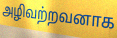
அழிவற்றவனாக